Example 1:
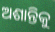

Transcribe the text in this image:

ଅଶାନ୍ତିକୁ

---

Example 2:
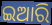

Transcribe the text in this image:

ଇଆରି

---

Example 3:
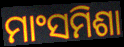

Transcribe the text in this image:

ମାଂସମିଶା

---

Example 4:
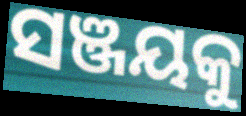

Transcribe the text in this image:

ସଞ୍ଜୟକୁ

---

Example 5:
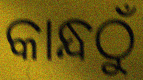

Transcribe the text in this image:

କାନ୍ଧଠୁଁ